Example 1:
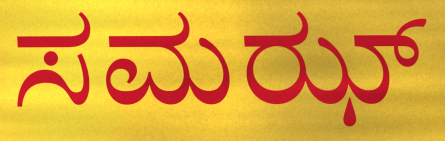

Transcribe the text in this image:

ಸಮಝ್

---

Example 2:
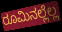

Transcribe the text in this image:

ರೂಮಿನಲ್ಲೆಲ್ಲ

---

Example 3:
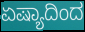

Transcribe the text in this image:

ಏಷ್ಯಾದಿಂದ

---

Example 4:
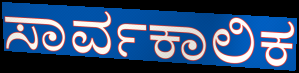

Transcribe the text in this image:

ಸಾರ್ವಕಾಲಿಕ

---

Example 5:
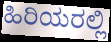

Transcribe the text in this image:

ಹಿರಿಯರಲ್ಲಿ